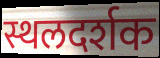
स्थलदर्शक